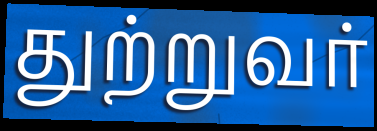
துற்றுவர்